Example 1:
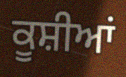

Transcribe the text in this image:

ਕੂਸ਼ੀਆਂ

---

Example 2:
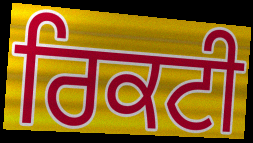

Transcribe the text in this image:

ਰਿਕਟੀ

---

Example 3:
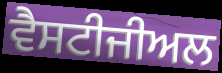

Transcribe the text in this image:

ਵੈਸਟੀਜੀਅਲ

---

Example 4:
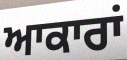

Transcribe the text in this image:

ਆਕਾਰਾਂ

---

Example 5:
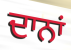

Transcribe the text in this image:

ਦਾਨਾਂ